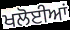
ਖਲੋਈਆਂ